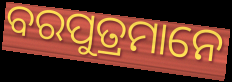
ବରପୁତ୍ରମାନେ